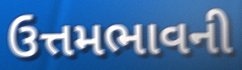
ઉત્તમભાવની